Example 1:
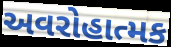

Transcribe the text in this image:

અવરોહાત્મક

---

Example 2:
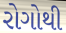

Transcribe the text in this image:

રોગોથી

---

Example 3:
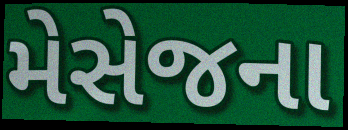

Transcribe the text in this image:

મેસેજના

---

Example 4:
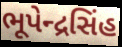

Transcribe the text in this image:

ભૂપેન્દ્રસિંહ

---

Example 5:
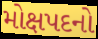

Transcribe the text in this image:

મોક્ષપદનો